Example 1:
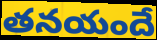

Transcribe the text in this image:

తనయందే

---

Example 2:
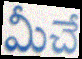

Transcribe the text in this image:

మీచే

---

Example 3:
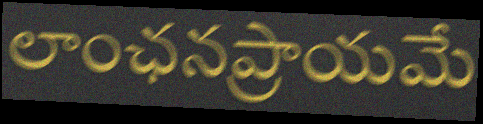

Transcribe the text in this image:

లాంఛనప్రాయమే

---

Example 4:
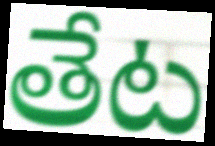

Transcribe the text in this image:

తేట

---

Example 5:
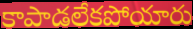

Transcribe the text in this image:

కాపాడలేకపోయారు